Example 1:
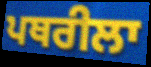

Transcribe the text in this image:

ਪਥਰੀਲਾ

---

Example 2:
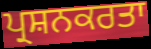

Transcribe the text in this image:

ਪ੍ਰਸ਼ਨਕਰਤਾ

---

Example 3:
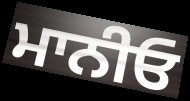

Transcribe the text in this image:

ਮਾਨੀਓ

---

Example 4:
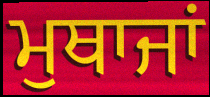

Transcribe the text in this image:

ਮੁਥਾਜਾਂ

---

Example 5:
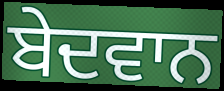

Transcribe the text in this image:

ਬੇਦਵਾਨ